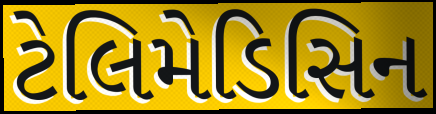
ટેલિમેડિસિન